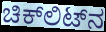
ಚಿಕ್‌ಲಿಟ್‌ನ